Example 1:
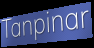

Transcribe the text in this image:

Tanpinar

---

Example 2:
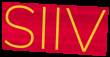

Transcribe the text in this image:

SIIV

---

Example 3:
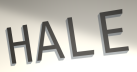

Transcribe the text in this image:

HALE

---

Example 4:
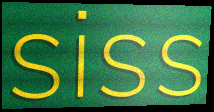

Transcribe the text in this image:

siss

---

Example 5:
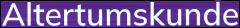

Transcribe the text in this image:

Altertumskunde